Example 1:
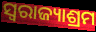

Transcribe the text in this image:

ସ୍ୱରାଜ୍ୟାଶ୍ରମ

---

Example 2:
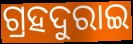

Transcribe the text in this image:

ଗ୍ରହଦୁରାଇ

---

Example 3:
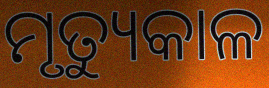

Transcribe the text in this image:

ମୃତ୍ୟୁକାଳ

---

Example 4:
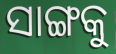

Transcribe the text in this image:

ସାଙ୍ଗକୁ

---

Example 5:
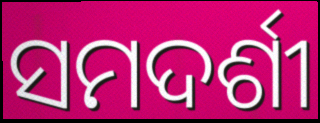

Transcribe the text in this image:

ସମଦର୍ଶୀ